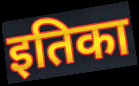
इतिका